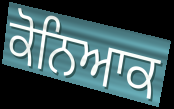
ਕੋਨਿਆਕ